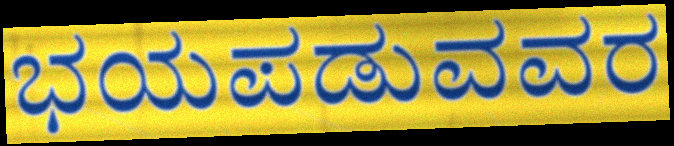
ಭಯಪಡುವವರ